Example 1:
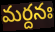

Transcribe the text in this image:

మర్దనః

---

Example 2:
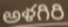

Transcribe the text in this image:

అళగిరి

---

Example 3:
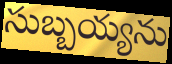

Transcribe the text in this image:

సుబ్బయ్యను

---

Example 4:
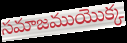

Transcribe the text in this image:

సమాజముయొక్క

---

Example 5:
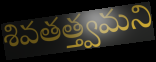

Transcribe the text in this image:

శివతత్త్వమని